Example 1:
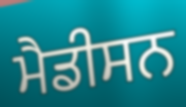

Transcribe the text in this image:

ਮੈਡੀਸਨ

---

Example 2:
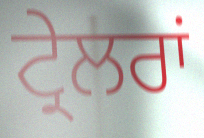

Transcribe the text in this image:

ਟ੍ਰੇਲਰਾਂ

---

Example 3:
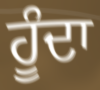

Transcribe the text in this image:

ਹੂੰਦਾ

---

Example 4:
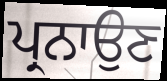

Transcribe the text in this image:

ਪ੍ਰਨਾਉਣ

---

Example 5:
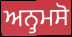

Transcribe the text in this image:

ਅਨ੍ਤਮਸੋ